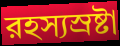
রহস্যস্রষ্টা